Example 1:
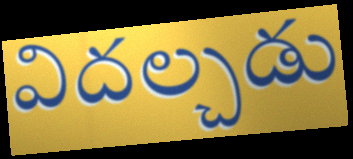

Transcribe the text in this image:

విదల్చడు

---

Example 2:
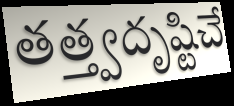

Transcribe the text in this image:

తత్త్వదృష్టిచే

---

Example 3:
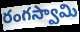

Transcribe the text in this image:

రంగస్వామి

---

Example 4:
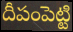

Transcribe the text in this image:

దీపంపెట్టి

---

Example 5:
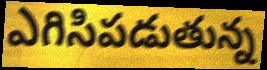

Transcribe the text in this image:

ఎగిసిపడుతున్న